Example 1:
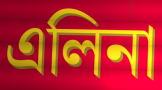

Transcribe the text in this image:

এলিনা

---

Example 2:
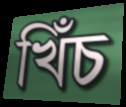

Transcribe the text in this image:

খিঁচ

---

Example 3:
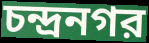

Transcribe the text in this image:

চন্দ্রনগর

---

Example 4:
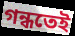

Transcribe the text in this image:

গন্ধতেই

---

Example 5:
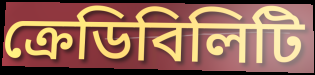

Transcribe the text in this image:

ক্রেডিবিলিটি